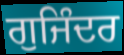
ਗੁਜਿੰਦਰ